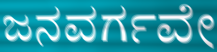
ಜನವರ್ಗವೇ